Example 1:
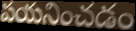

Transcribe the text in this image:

పయనించడం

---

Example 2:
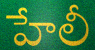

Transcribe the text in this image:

హేలీ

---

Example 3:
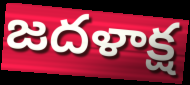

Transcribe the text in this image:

జదళాక్ష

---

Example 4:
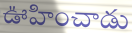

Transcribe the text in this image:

ఊహించాడు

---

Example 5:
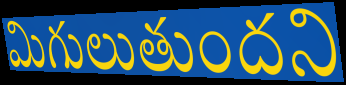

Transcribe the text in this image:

మిగులుతుందని